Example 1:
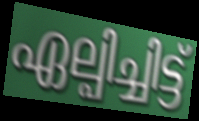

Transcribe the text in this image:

ഏല്പിച്ചിട്ട്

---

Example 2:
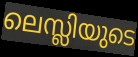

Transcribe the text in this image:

ലെസ്ലിയുടെ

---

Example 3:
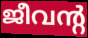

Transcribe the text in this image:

ജീവന്റ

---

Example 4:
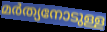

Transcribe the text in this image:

മർത്യനോടുള്ള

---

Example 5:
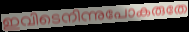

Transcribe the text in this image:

ഇവിടെനിന്നുപോകരുതേ